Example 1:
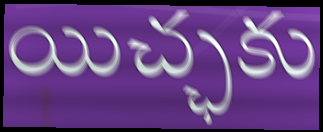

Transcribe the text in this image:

యిచ్ఛకు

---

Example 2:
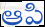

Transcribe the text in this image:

ఆపి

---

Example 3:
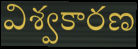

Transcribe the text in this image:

విశ్వకారణ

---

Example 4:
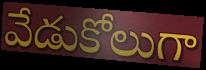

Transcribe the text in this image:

వేడుకోలుగా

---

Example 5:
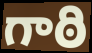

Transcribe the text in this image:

గాఠి